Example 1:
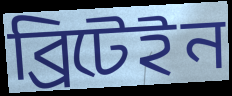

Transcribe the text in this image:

ব্ৰিটেইন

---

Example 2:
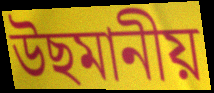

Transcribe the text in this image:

উছমানীয়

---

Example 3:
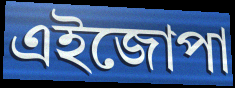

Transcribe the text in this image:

এইজোপা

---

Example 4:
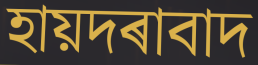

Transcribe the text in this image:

হায়দৰাবাদ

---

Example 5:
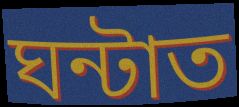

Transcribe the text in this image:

ঘন্টাত